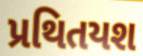
પ્રથિતયશ